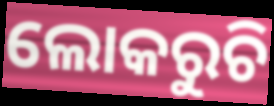
ଲୋକରୁଚି